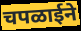
चपळाईने